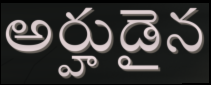
అర్హుడైన